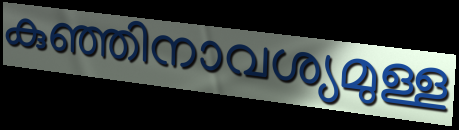
കുഞ്ഞിനാവശ്യമുള്ള